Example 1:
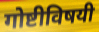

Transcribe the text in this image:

गोष्टीविषयी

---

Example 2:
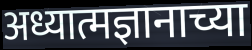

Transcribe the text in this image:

अध्यात्मज्ञानाच्या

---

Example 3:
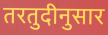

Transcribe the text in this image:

तरतुदीनुसार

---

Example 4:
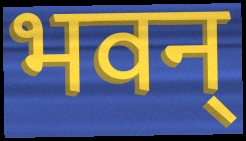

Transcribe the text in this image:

भवन्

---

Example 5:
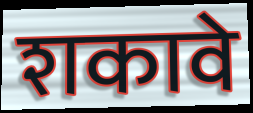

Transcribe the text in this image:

शकावे